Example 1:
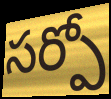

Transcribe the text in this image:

సర్పో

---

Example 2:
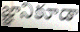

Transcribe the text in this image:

జ్ఞానికూడా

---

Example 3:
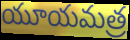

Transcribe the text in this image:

యూయమత్ర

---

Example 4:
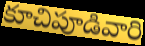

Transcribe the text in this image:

కూచిపూడివారి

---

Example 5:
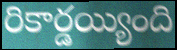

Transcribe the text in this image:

రికార్డయ్యింది